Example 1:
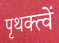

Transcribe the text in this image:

पृथक्त्वें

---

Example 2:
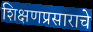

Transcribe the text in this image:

शिक्षणप्रसाराचे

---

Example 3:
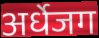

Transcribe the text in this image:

अर्धेजग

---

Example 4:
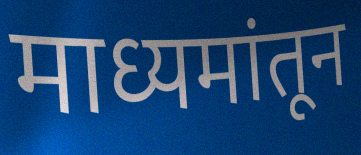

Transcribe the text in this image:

माध्यमांतून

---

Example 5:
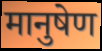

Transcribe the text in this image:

मानुषेण